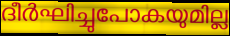
ദീർഘിച്ചുപോകയുമില്ല